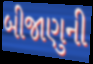
બીજાણુની